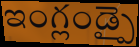
ఇంగ్లండ్పై